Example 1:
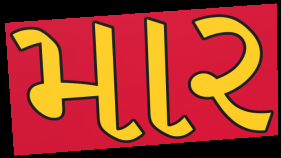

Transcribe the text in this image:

માર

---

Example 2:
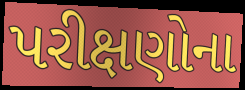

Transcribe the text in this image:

પરીક્ષણોના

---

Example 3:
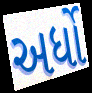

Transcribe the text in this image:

અર્ધો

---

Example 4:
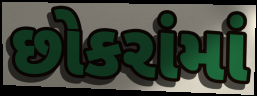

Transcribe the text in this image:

છોકરાંમાં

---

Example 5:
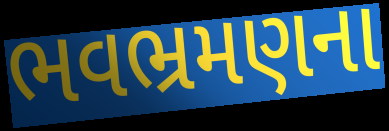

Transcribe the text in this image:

ભવભ્રમણના